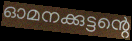
ഓമനക്കുട്ടന്റെ